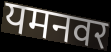
यमनवर